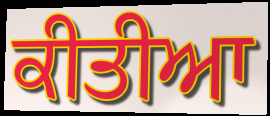
ਕੀਤੀਆ